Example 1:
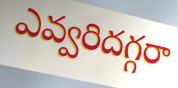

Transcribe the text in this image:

ఎవ్వరిదగ్గరా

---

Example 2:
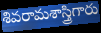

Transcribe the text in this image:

శివరామశాస్త్రిగారు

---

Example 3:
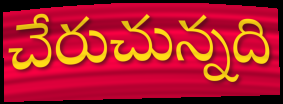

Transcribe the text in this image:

చేరుచున్నది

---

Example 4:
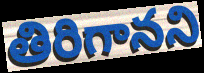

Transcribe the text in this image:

తిరిగానని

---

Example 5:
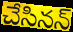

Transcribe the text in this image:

చేసినన్